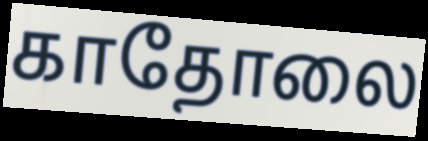
காதோலை